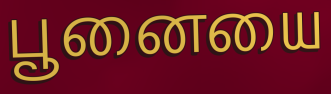
பூனையை